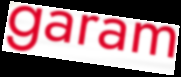
garam